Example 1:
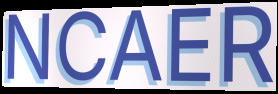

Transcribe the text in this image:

NCAER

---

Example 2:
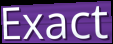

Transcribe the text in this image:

Exact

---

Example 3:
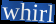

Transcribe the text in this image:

whirl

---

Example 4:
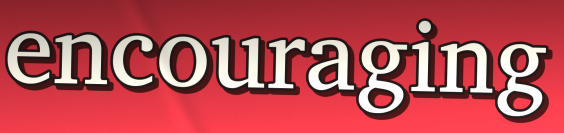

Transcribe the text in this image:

encouraging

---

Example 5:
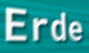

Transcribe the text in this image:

Erde